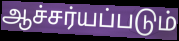
ஆச்சர்யப்படும்